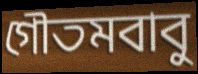
গৌতমবাবু